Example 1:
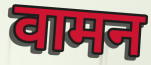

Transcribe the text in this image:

वामन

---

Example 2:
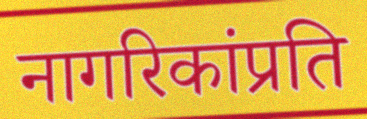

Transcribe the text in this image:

नागरिकांप्रति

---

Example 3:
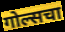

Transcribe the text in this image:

गोल्सचा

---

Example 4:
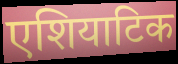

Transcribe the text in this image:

एशियाटिक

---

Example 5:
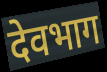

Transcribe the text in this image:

देवभाग